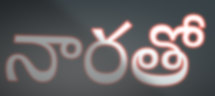
నారతో